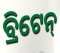
ବ୍ରିଟେନ୍